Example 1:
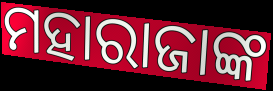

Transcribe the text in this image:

ମହାରାଜାଙ୍କ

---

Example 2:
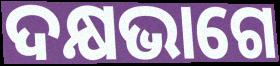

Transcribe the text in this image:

ଦକ୍ଷଭାଗେ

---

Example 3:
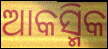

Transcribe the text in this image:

ଆକସ୍ମିକ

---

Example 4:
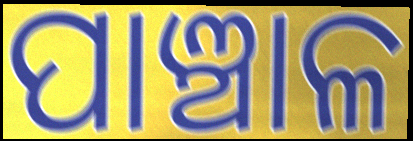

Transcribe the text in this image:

ପାଞ୍ଚାଳ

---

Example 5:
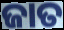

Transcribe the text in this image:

ଜାତ